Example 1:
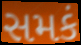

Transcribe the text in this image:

સમકં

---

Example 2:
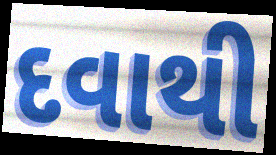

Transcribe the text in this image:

દવાથી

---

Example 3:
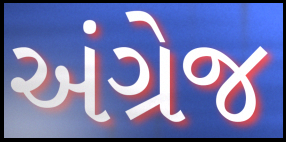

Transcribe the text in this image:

અંગ્રેજ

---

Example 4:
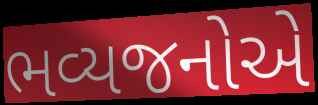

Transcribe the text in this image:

ભવ્યજનોએ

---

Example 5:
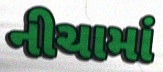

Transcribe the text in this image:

નીચામાં